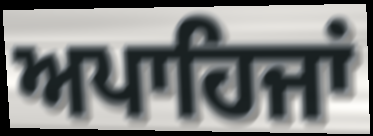
ਅਪਾਹਿਜਾਂ